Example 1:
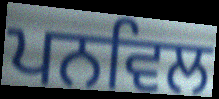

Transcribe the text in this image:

ਪਨਵਿਲ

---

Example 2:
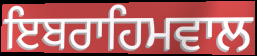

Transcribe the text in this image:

ਇਬਰਾਹਿਮਵਾਲ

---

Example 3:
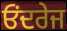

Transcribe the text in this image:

ਓਂਦਰੇਜ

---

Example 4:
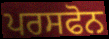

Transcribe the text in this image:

ਪਰਸਫੋਨ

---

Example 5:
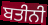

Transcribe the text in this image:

ਬਤੀਨੀ